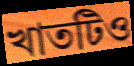
খাতটিও